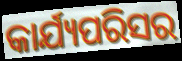
କାର୍ଯ୍ୟପରିସର